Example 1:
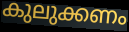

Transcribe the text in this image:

കുലുക്കണം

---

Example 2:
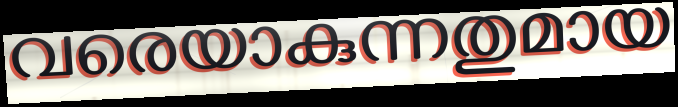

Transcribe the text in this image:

വരെയാകുന്നതുമായ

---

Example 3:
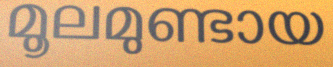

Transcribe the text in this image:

മൂലമുണ്ടായ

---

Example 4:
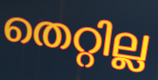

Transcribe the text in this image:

തെറ്റില്ല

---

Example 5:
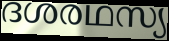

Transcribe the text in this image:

ദശരഥസ്യ